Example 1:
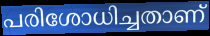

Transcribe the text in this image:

പരിശോധിച്ചതാണ്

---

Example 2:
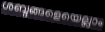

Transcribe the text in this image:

ശബ്ദങ്ങളെയെല്ലാം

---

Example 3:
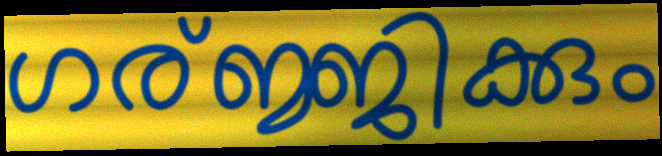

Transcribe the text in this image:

ഗര്ജ്ജിക്കും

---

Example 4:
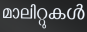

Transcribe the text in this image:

മാലിറ്റുകൾ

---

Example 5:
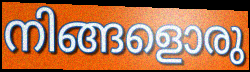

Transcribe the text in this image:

നിങ്ങളൊരു